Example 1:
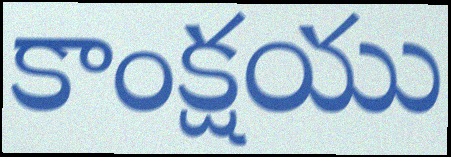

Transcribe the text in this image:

కాంక్షయు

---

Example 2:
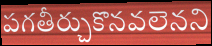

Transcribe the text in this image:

పగతీర్చుకొనవలెనని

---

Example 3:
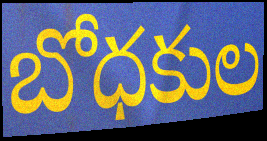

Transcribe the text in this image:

బోధకుల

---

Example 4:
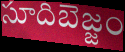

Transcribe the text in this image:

సూదిబెజ్జం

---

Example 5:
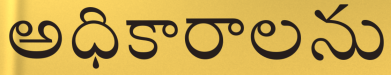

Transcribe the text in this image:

అధికారాలను